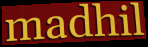
madhil